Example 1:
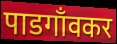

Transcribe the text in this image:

पाडगाँवकर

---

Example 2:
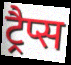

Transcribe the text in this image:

ट्रैप्स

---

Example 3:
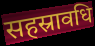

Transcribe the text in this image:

सहस्रावधि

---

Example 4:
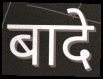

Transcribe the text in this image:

बादे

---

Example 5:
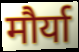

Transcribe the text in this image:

मौर्या